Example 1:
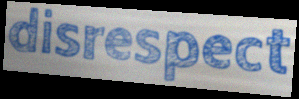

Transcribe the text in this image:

disrespect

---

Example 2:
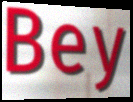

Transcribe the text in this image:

Bey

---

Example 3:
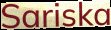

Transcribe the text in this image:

Sariska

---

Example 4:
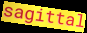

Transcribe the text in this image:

sagittal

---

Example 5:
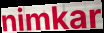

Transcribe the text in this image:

nimkar